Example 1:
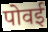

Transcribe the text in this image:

पोवई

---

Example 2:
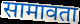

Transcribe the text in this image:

सामावता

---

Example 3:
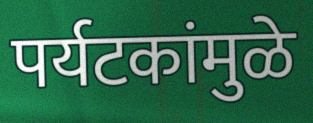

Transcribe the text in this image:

पर्यटकांमुळे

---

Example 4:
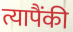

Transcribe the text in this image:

त्यापैंकी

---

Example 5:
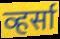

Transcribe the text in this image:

व्हर्सा